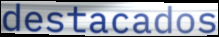
destacados